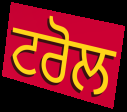
ਟਰੋਲ